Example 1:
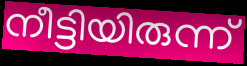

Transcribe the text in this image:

നീട്ടിയിരുന്ന്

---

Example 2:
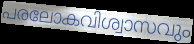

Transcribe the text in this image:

പരലോകവിശ്വാസവും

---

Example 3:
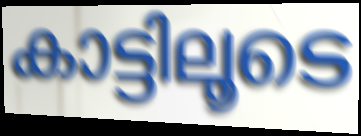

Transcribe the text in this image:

കാട്ടിലൂടെ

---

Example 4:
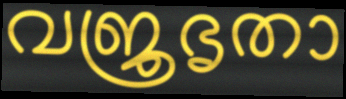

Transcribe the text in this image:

വജ്രഭൃതാ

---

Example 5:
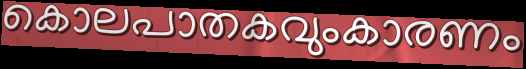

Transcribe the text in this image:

കൊലപാതകവുംകാരണം